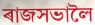
ৰাজসভালৈ